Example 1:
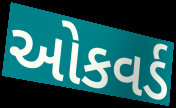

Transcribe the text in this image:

ઓકવર્ડ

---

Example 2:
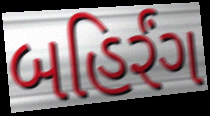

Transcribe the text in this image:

બહિર્રંગ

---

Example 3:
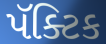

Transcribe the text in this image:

પૅક્ટિક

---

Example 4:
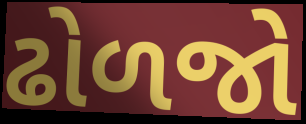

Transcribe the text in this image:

ઢોળજો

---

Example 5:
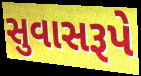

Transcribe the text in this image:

સુવાસરૂપે